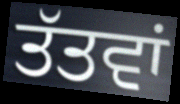
ਤੱਤਵਾਂ